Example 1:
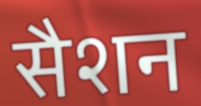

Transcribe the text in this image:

सैशन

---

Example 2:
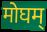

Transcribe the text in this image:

मोघम्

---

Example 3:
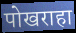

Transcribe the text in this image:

पोखराहा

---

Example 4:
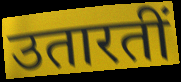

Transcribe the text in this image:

उतारतीं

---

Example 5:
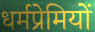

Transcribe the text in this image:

धर्मप्रेमियों